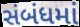
સંબંધમાં